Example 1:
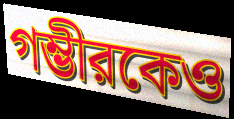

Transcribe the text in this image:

গম্ভীরকেও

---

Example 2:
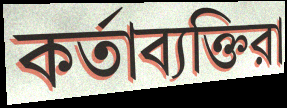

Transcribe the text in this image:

কর্তাব্যক্তিরা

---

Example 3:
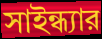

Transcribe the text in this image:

সাইন্ধ্যার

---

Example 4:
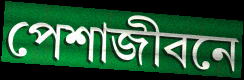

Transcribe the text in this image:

পেশাজীবনে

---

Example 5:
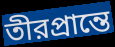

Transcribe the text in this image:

তীরপ্রান্তে